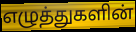
எழுத்துகளின்